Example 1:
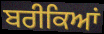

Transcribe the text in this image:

ਬਰੀਕਿਆਂ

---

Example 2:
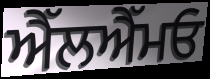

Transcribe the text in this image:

ਐੱਲਐੱਮਓ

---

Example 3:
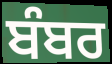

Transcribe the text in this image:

ਬੰਬਰ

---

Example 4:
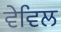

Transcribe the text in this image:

ਵੇਵਿਲ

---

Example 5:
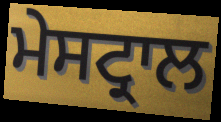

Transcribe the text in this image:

ਮੇਸਟ੍ਰਾਲ